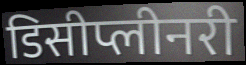
डिसीप्लीनरी